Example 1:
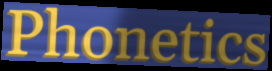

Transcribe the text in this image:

Phonetics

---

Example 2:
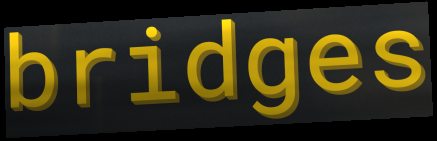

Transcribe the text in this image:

bridges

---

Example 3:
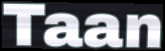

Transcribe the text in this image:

Taan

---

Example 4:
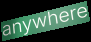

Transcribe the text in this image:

anywhere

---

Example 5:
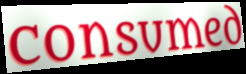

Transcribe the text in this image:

consumed